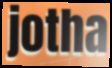
jotha